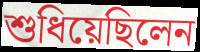
শুধিয়েছিলেন